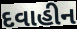
દવાહીન